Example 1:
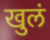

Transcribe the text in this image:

खुलं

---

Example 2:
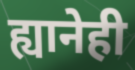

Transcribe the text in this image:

ह्यानेही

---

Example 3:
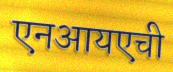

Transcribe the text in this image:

एनआयएची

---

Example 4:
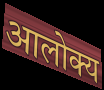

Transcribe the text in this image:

आलोक्य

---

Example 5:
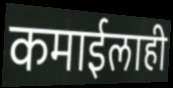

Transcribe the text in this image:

कमाईलाही